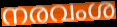
നരവംശ